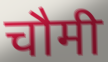
चौमी